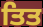
ਤਿਤ